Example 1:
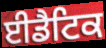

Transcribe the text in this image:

ਈਡੈਟਿਕ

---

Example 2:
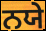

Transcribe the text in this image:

ਨਯੇ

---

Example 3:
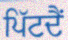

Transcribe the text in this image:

ਪਿੱਟਦੈਂ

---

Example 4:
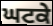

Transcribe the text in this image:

ਘਟਕੇ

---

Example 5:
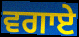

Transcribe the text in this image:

ਵਗਾਏ